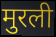
मुरली